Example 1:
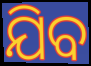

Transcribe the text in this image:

ଯିବ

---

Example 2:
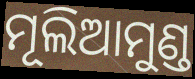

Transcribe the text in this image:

ମୂଲିଆମୁଣ୍ଡ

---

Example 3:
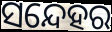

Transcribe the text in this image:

ସନ୍ଦେହର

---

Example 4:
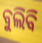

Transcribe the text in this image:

ବୁଲିବି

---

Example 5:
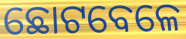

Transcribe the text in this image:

ଛୋଟବେଳେ